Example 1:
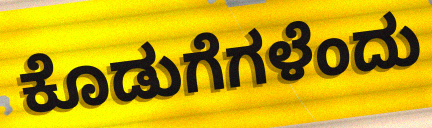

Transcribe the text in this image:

ಕೊಡುಗೆಗಳೆಂದು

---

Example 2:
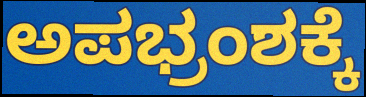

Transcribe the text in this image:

ಅಪಭ್ರಂಶಕ್ಕೆ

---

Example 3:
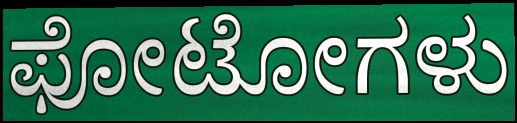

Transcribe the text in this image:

ಫೋಟೋಗಳು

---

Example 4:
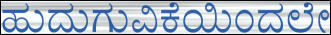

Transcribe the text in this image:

ಹುದುಗುವಿಕೆಯಿಂದಲೇ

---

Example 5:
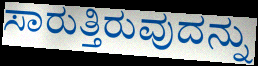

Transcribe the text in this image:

ಸಾರುತ್ತಿರುವುದನ್ನು